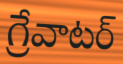
గ్రేవాటర్